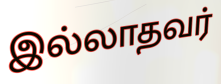
இல்லாதவர்